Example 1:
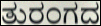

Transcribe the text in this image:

ತುರಂಗದ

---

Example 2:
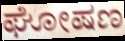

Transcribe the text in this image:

ಘೋಷಣ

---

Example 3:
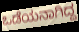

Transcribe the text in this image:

ಒಡೆಯನಾಗಿದ್ದ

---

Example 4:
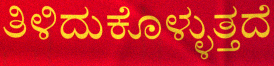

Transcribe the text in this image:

ತಿಳಿದುಕೊಳ್ಳುತ್ತದೆ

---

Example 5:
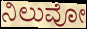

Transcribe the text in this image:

ನಿಲುವೋ